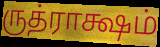
ருத்ராக்ஷம்